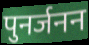
पुनर्जनन